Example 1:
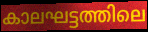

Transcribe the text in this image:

കാലഘട്ടത്തിലെ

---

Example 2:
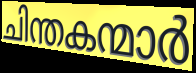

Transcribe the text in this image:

ചിന്തകന്മാർ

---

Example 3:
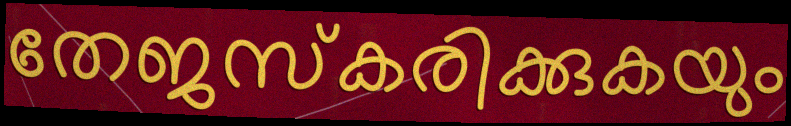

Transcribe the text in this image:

തേജസ്കരിക്കുകയും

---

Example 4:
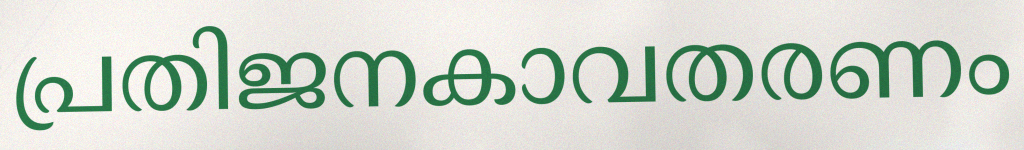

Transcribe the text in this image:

പ്രതിജനകാവതരണം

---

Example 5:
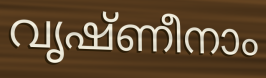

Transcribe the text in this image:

വൃഷ്ണീനാം